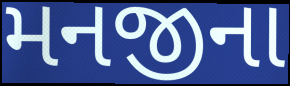
મનજીના